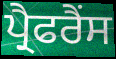
ਪ੍ਰੈਫਰੈਂਸ